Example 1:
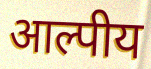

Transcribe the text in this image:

आल्पीय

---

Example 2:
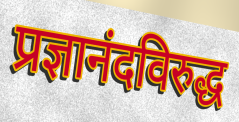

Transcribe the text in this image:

प्रज्ञानंदविरुद्ध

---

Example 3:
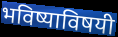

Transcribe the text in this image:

भविष्याविषयी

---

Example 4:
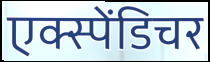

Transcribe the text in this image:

एक्स्पेंडिचर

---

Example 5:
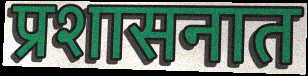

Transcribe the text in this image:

प्रशासनात